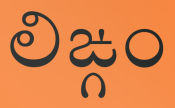
లిఙ్గం